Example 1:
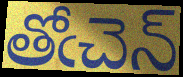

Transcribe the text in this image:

తోఁచెన్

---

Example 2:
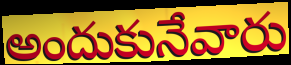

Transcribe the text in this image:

అందుకునేవారు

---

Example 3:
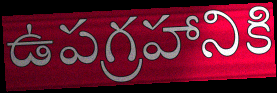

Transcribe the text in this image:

ఉపగ్రహానికి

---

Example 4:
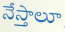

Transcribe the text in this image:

నేస్తాలూ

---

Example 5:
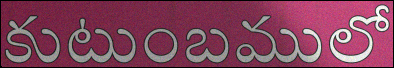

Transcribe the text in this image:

కుటుంబములో